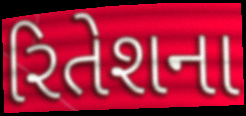
રિતેશના